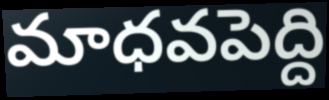
మాధవపెద్ది